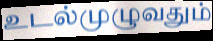
உடல்முழுவதும்